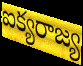
ఐక్యరాజ్య